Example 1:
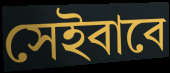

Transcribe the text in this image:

সেইবাবে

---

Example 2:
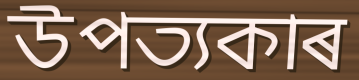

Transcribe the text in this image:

উপত্যকাৰ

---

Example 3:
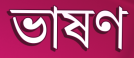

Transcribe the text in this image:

ভাষণ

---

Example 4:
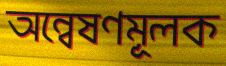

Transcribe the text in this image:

অন্বেষণমূলক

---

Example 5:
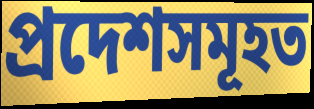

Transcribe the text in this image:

প্ৰদেশসমূহত